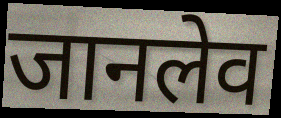
जानलेव